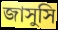
জাসুসি